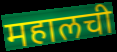
महालची